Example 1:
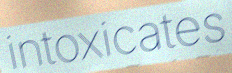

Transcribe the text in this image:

intoxicates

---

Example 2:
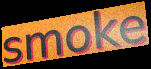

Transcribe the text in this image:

smoke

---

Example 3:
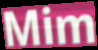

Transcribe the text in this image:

Mim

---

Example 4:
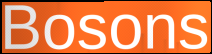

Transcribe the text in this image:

Bosons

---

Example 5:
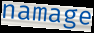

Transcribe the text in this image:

namage